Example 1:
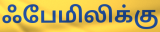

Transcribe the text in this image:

ஃபேமிலிக்கு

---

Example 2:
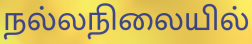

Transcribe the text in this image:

நல்லநிலையில்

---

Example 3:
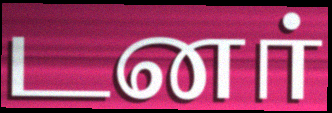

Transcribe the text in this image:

டனர்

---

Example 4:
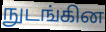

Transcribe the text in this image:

நுடங்கின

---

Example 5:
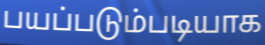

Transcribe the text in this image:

பயப்படும்படியாக